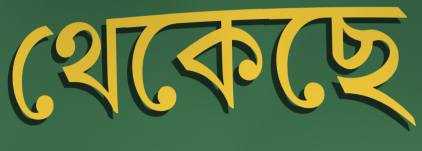
থেকেছে